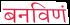
बनविणं